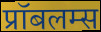
प्रॉबलम्स